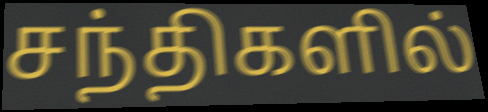
சந்திகளில்